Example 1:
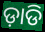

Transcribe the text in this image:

ଡ଼ାଡି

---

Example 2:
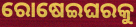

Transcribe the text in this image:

ରୋଷେଇଘରକୁ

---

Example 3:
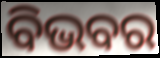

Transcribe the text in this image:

ବିଭବର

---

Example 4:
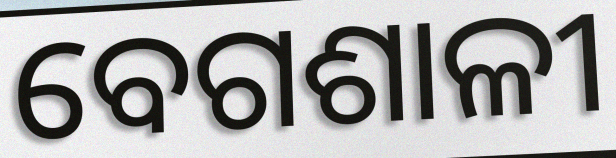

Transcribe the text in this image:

ବେଗଶାଳୀ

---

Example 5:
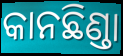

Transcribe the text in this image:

କାନଛିଣ୍ଡା